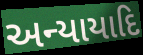
અન્યાયાદિ